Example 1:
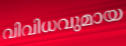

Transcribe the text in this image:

വിവിധവുമായ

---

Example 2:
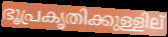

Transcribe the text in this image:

ഭൂപ്രകൃതിക്കുള്ളില്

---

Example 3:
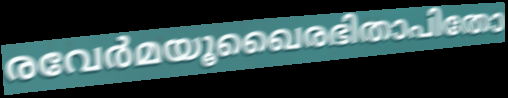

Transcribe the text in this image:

രവേർമയൂഖൈരഭിതാപിതോ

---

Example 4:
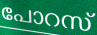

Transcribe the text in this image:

പോറസ്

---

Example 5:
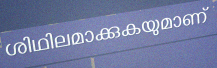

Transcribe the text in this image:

ശിഥിലമാക്കുകയുമാണ്